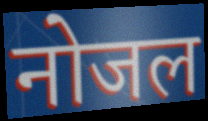
नोजल